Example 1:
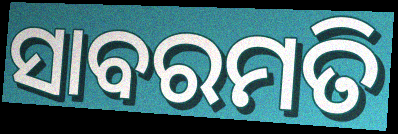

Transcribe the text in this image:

ସାବରମତି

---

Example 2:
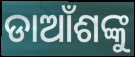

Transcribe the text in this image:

ଡାଆଁଶଙ୍କୁ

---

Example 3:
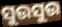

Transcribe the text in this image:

ସୁଉସୁଉ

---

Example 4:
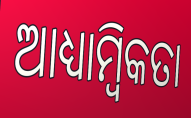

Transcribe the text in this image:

ଆଧ୍ୟାମ୍ବିକତା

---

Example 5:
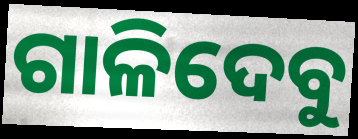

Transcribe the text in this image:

ଗାଳିଦେବୁ